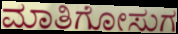
ಮಾತಿಗೋಸುಗ